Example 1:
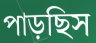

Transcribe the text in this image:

পাড়ছিস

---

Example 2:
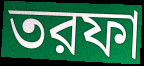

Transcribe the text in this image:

তরফা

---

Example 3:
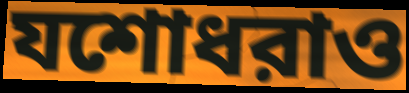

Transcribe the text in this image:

যশোধরাও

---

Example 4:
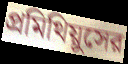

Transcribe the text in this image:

প্রমিথিয়ুসের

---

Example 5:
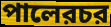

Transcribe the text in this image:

পালেরচর